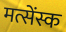
मत्सेंस्क